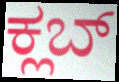
ಕ್ಲಬ್